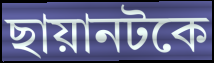
ছায়ানটকে